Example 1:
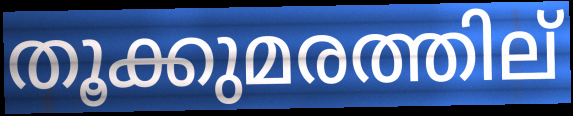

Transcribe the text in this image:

തൂക്കുമരത്തില്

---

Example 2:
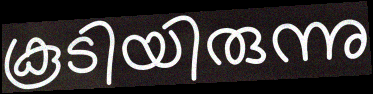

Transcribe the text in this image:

കൂടിയിരുന്നു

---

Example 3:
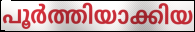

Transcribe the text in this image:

പൂർത്തിയാക്കിയ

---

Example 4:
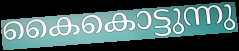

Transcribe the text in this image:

കൈകൊട്ടുന്നു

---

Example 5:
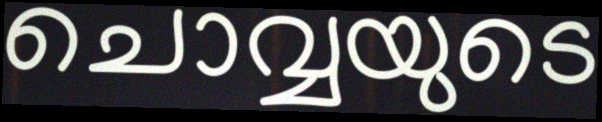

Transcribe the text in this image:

ചൊവ്വയുടെ